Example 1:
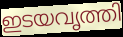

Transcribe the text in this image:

ഇടയവൃത്തി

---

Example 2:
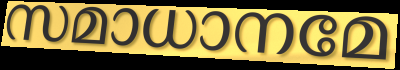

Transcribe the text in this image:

സമാധാനമേ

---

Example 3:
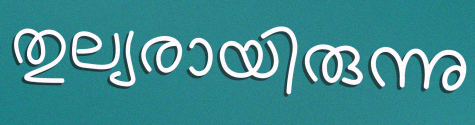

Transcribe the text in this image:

തുല്യരായിരുന്നു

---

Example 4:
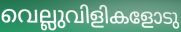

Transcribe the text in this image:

വെല്ലുവിളികളോടു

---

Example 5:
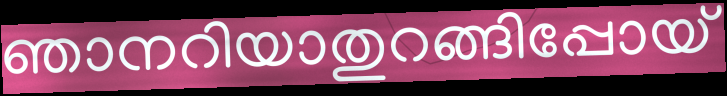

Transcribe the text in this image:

ഞാനറിയാതുറങ്ങിപ്പോയ്